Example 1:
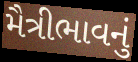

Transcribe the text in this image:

મૈત્રીભાવનું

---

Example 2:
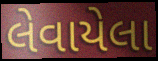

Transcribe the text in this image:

લેવાયેલા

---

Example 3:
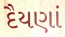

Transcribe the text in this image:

દૈયણાં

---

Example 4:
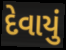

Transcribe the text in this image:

દેવાયું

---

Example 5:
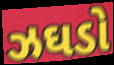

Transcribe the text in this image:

ઝઘડો